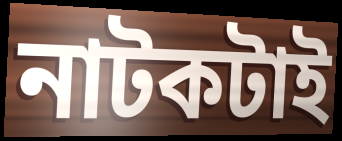
নাটকটাই